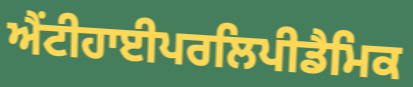
ਐਂਟੀਹਾਈਪਰਲਿਪੀਡੈਮਿਕ